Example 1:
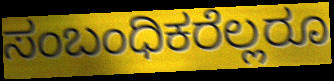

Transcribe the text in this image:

ಸಂಬಂಧಿಕರೆಲ್ಲರೂ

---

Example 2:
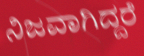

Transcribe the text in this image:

ನಿಜವಾಗಿದ್ದರೆ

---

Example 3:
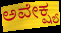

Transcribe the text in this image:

ಅವೇಕ್ಷ್ಯ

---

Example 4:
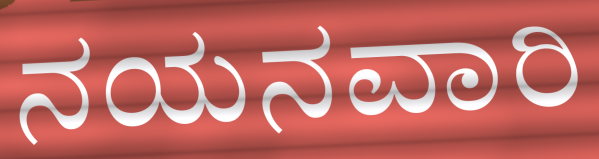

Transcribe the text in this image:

ನಯನವಾರಿ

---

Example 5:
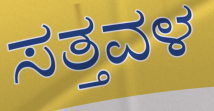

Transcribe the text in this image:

ಸತ್ತವಳ